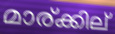
മാര്ക്കില്